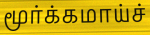
மூர்க்கமாய்ச்